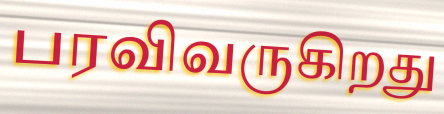
பரவிவருகிறது